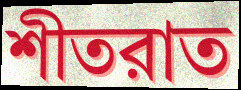
শীতরাত